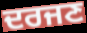
ਦਰਜਣ